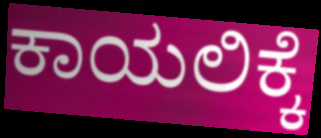
ಕಾಯಲಿಕ್ಕೆ